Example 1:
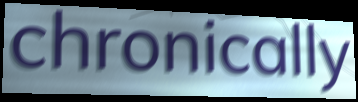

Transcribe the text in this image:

chronically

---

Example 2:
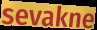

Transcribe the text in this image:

sevakne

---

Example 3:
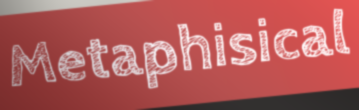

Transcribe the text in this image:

Metaphisical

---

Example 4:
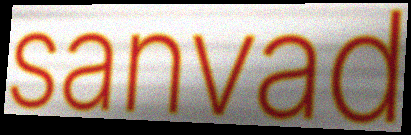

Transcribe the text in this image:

sanvad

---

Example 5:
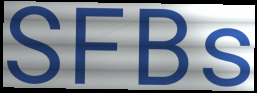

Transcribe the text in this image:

SFBs